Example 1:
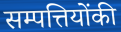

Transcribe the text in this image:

सम्पत्तियोंकी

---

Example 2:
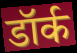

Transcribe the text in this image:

डॉर्क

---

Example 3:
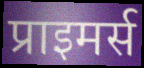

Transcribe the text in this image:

प्राइमर्स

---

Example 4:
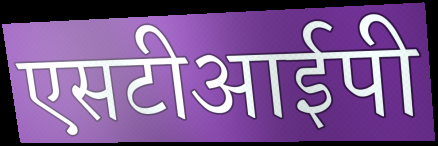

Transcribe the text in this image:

एसटीआईपी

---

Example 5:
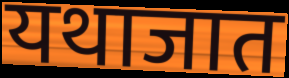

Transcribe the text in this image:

यथाजात